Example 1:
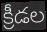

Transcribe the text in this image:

క్రీడల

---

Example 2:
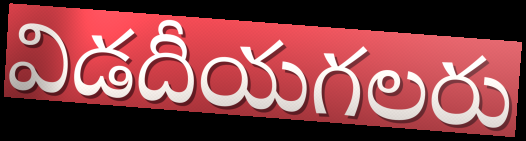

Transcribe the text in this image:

విడదీయగలరు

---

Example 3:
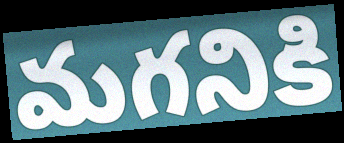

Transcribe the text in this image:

మగనికి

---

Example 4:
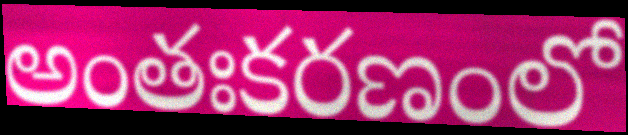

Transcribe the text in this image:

అంతఃకరణంలో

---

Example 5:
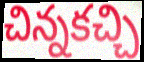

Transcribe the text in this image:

చిన్నకచ్చి